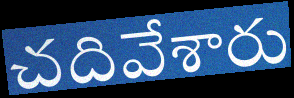
చదివేశారు